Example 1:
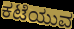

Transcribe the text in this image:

ಕಟೆಯುವ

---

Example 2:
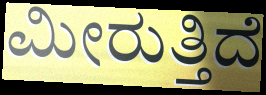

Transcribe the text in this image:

ಮೀರುತ್ತಿದೆ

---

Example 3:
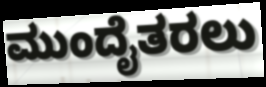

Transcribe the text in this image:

ಮುಂದೈತರಲು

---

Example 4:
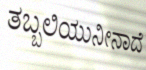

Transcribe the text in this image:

ತಬ್ಬಲಿಯುನೀನಾದೆ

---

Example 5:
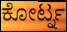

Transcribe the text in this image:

ಕೋರ್ಟ್ನ